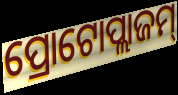
ପ୍ରୋଟୋପ୍ଲାଜମ୍